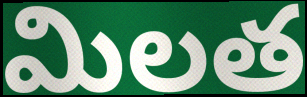
మిలత